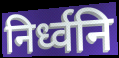
निर्ध्वनि